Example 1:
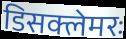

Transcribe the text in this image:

डिसक्लेमरः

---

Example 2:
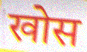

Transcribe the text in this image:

खोस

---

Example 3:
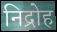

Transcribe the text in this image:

निद्रोह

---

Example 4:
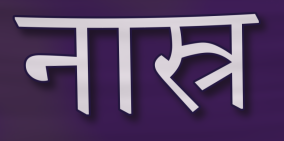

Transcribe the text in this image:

नास्र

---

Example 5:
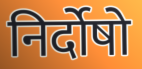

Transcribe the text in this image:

निर्दोषो